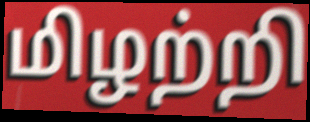
மிழற்றி